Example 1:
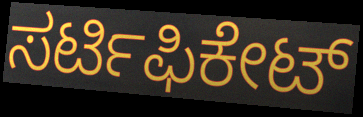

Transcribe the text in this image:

ಸರ್ಟಿಫಿಕೇಟ್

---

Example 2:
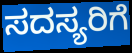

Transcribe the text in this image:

ಸದಸ್ಯರಿಗೆ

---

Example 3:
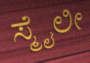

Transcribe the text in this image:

ಸ್ಮೈಲೀ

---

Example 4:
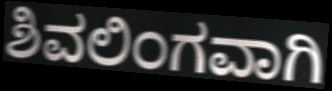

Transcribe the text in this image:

ಶಿವಲಿಂಗವಾಗಿ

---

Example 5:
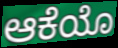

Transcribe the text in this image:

ಆಕೆಯೊ